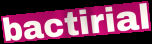
bactirial